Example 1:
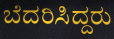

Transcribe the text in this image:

ಬೆದರಿಸಿದ್ದರು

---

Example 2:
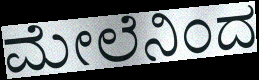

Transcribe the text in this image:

ಮೇಲೆನಿಂದ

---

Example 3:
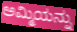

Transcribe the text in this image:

ಅಮ್ಮಿಯನ್ನು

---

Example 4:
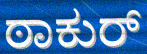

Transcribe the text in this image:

ಠಾಕುರ್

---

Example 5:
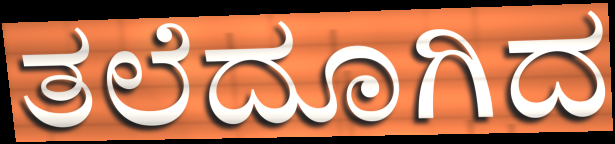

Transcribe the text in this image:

ತಲೆದೂಗಿದ